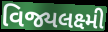
વિજ્યલક્ષ્મી